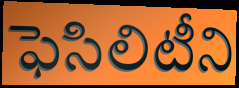
ఫెసిలిటీని